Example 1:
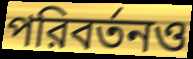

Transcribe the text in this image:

পরিবর্তনও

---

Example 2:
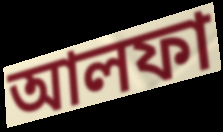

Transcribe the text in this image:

আলফা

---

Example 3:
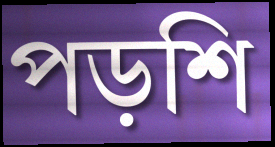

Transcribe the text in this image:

পড়শি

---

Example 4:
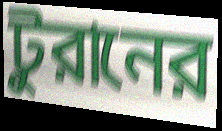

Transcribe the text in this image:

টুরানের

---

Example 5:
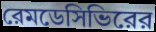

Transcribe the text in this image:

রেমডেসিভিরের